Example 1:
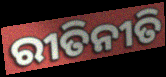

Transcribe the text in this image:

ରୀତିନୀତି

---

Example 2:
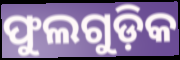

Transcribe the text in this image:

ଫୁଲଗୁଡ଼ିକ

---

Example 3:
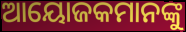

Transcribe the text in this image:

ଆୟୋଜକମାନଙ୍କୁ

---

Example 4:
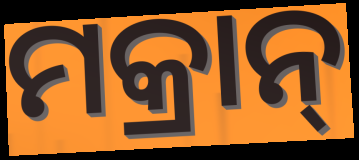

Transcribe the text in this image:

ମକ୍ରାନ୍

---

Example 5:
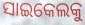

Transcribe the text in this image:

ସାଇକେଲକୁ